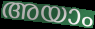
അയാം